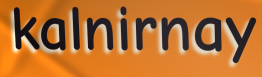
kalnirnay